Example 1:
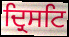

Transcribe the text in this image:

ਦ੍ਰਿਸਟਿ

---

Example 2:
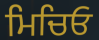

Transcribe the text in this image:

ਮਿਚਿਓ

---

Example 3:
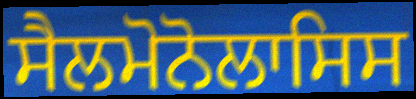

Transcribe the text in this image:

ਸੈਲਮੋਨੋਲਾਸਿਸ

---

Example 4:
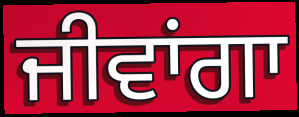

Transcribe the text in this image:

ਜੀਵਾਂਗਾ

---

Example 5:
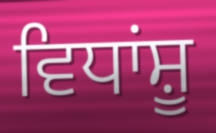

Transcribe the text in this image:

ਵਿਧਾਂਸ਼ੂ